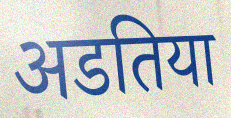
अडतिया